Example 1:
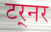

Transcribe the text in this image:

टर्नर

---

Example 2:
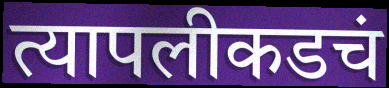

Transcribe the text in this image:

त्यापलीकडचं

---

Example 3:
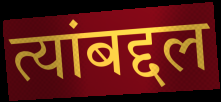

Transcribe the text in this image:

त्यांबद्दल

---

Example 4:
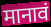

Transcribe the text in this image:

मानावं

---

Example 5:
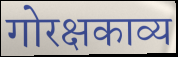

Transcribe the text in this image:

गोरक्षकाव्य